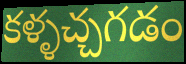
కళ్ళచ్చగడం